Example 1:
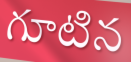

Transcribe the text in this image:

గూటిన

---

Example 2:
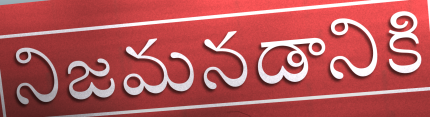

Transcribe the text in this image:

నిజమనడానికి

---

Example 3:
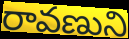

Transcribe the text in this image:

రావణుని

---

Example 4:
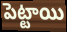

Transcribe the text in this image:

పెట్టాయి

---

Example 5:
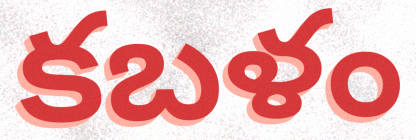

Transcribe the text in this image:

కబళం